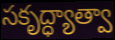
సకృద్ధ్యాత్వా